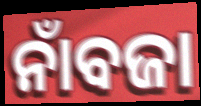
ନାଁବଜା